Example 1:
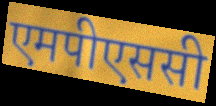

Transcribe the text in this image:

एमपीएससी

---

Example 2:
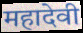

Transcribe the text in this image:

महादेवी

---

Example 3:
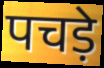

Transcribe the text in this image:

पचड़े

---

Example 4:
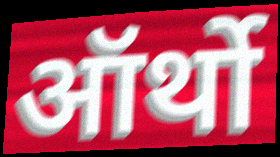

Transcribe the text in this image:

ऑर्थो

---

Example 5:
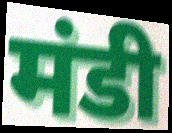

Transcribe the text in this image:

मंडी